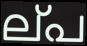
ല്‌പ